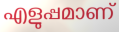
എളുപ്പമാണ്